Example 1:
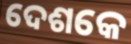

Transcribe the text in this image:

ଦେଶକେ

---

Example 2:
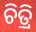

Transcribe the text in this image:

ଚିତ୍ରି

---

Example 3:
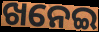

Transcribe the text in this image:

ଖନେଇ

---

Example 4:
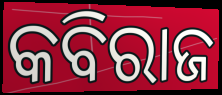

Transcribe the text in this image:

କବିରାଜ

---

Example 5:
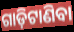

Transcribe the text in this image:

ଗାଡ଼ିଟାଣିବା